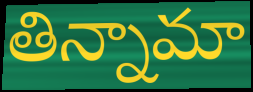
తిన్నామా